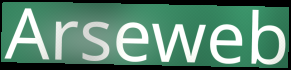
Arseweb